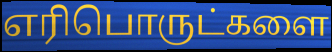
எரிபொருட்களை